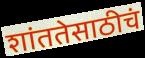
शांततेसाठीचं